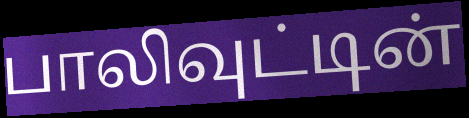
பாலிவுட்டின்